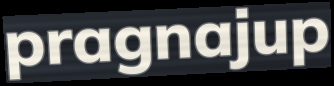
pragnajup